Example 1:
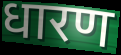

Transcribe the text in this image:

धारण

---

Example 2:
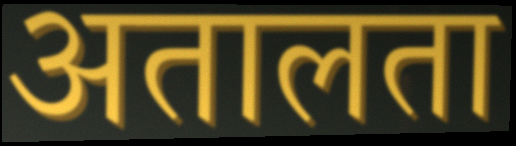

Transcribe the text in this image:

अतालता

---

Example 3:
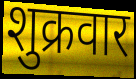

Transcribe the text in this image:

शुक्रवार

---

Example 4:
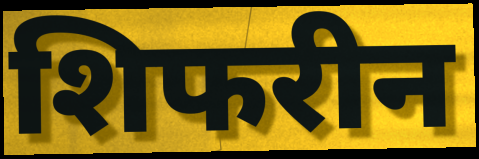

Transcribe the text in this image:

शिफरीन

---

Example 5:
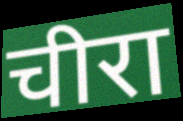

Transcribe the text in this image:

चीरा